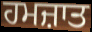
ਹਮਜ਼ਾਤ